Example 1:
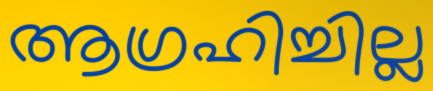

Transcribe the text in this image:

ആഗ്രഹിച്ചില്ല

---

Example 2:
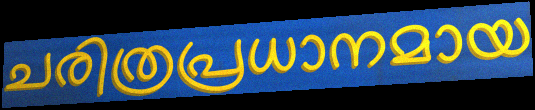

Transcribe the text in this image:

ചരിത്രപ്രധാനമായ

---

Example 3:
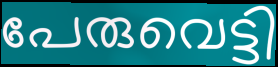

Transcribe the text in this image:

പേരുവെട്ടി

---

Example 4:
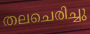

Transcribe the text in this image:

തലചെരിച്ചു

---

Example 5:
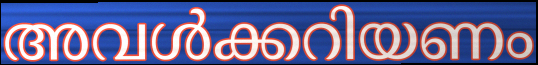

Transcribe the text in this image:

അവൾക്കറിയണം